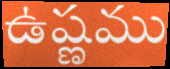
ఉష్ణము